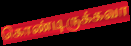
கொண்டிருக்கவா